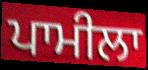
ਪਾਮੀਲਾ